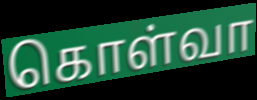
கொள்வா